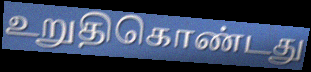
உறுதிகொண்டது